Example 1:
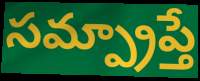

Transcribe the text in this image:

సమ్ప్రాప్తే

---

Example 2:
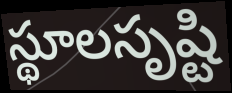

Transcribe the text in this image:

స్థూలసృష్టి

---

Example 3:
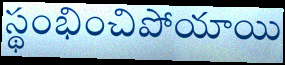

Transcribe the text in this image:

స్థంభించిపోయాయి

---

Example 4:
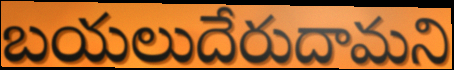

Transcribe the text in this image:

బయలుదేరుదామని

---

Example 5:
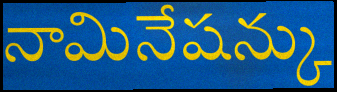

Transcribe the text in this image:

నామినేషన్కు